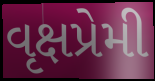
વૃક્ષપ્રેમી